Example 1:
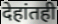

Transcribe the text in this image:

देहांतही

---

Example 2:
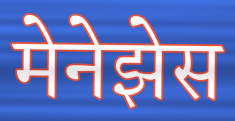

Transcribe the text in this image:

मेनेझेस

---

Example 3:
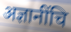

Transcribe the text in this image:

अज्ञानींचि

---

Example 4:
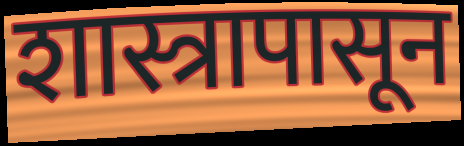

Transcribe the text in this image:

शास्त्रापासून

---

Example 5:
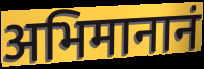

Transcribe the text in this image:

अभिमानानं